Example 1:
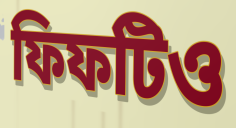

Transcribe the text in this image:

ফিফটিও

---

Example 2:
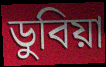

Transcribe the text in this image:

ডুবিয়া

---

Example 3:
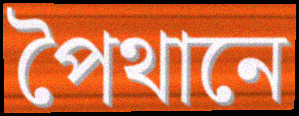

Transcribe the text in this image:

পৈথানে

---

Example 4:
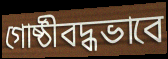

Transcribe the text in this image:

গোষ্ঠীবদ্ধভাবে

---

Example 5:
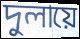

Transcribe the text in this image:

দুলায়ে